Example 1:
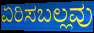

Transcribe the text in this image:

ಏರಿಸಬಲ್ಲವು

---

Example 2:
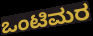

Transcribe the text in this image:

ಒಂಟಿಮರ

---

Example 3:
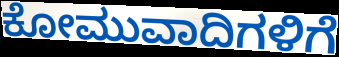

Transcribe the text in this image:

ಕೋಮುವಾದಿಗಳಿಗೆ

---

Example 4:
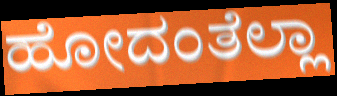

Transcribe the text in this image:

ಹೋದಂತೆಲ್ಲಾ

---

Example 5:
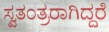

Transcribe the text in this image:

ಸ್ವತಂತ್ರರಾಗಿದ್ದರೆ